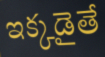
ఇక్కడైతే